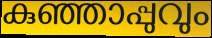
കുഞ്ഞാപ്പുവും